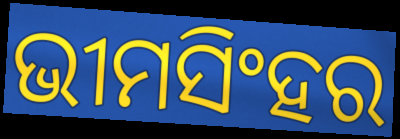
ଭୀମସିଂହର